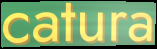
catura